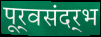
पूर्वसंदर्भ